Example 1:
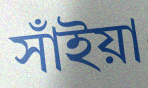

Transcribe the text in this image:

সাঁইয়া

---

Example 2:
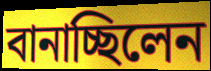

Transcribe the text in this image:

বানাচ্ছিলেন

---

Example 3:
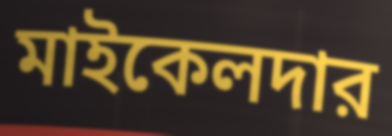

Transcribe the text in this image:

মাইকেলদার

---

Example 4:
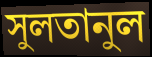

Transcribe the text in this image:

সুলতানুল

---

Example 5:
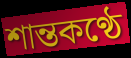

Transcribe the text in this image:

শান্তকণ্ঠে